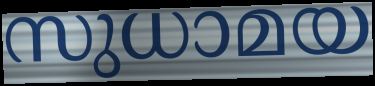
സുധാമയ